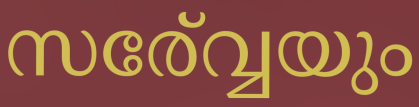
സര്വ്വേയും